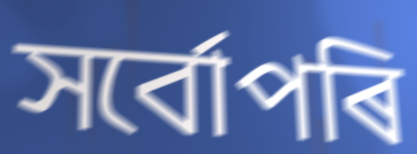
সৰ্বোপৰি